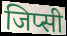
जिप्सी